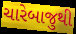
ચારેબાજુથી